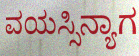
ವಯಸ್ಸಿನ್ಯಾಗ